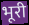
भूरी